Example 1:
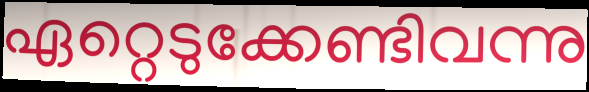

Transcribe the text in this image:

ഏറ്റെടുക്കേണ്ടിവന്നു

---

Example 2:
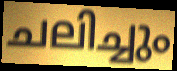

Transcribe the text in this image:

ചലിച്ചും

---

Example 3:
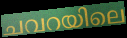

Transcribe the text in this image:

ചവറയിലെ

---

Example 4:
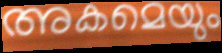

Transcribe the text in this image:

അകമെയും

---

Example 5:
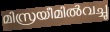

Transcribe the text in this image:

മിസ്രയീമിൽവച്ചു